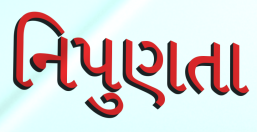
નિપુણતા